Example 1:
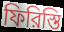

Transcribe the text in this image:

ফিরিস্তি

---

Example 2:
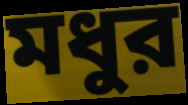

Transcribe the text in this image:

মধুর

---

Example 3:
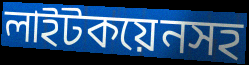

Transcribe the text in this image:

লাইটকয়েনসহ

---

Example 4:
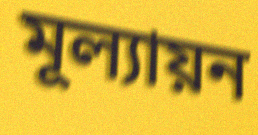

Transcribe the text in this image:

মূল্যায়ন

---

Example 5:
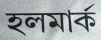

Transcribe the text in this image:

হলমার্ক